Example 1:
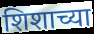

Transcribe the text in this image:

शिशाच्या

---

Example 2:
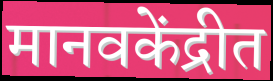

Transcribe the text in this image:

मानवकेंद्रीत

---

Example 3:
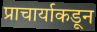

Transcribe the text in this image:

प्राचार्याकडून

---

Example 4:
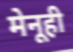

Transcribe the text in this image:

मेनूही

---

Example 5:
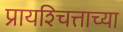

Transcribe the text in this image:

प्रायश्‍चित्ताच्या